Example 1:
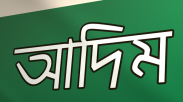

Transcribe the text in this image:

আদিম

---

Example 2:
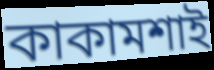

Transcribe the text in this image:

কাকামশাই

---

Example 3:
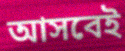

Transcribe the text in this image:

আসবেই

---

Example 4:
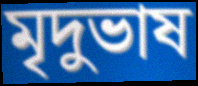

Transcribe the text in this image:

মৃদুভাষ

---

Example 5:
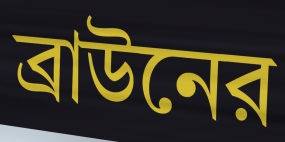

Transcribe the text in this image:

ব্রাউনের